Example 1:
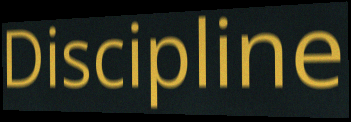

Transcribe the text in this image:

Discipline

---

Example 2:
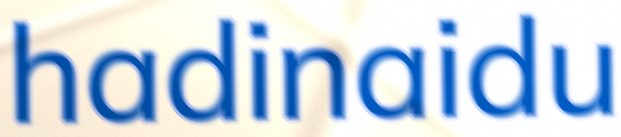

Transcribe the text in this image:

hadinaidu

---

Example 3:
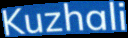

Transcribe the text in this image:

Kuzhali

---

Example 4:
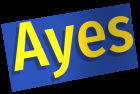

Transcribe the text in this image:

Ayes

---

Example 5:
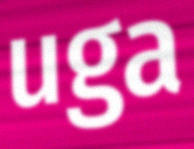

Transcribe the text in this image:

uga